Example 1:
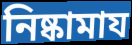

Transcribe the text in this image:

নিষ্কামায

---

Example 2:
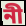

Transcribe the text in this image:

নী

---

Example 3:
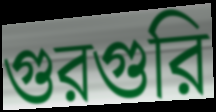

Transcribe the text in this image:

গুরগুরি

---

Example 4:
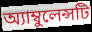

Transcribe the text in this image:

অ্যাম্বুলেন্সটি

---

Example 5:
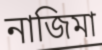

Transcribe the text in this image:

নাজিমা